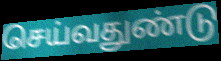
செய்வதுண்டு